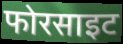
फोरसाइट